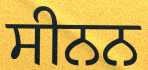
ਸੀਨਨ